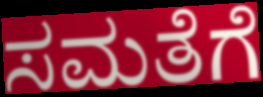
ಸಮತೆಗೆ